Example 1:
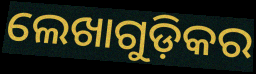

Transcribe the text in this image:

ଲେଖାଗୁଡ଼ିକର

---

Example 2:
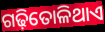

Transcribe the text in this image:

ଗଢ଼ିତୋଳିଥାଏ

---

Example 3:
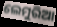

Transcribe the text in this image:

ଲେମୁରିଆ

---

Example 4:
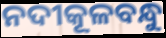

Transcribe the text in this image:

ନଦୀକୂଳବନ୍ଧୁ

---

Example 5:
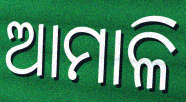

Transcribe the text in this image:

ଆମାଳି